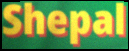
Shepal